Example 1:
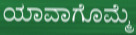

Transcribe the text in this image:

ಯಾವಾಗೊಮ್ಮೆ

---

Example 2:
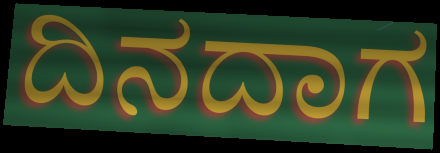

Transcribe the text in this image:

ದಿನದಾಗ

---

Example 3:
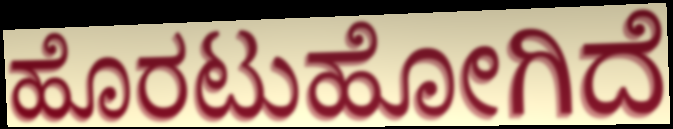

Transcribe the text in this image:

ಹೊರಟುಹೋಗಿದೆ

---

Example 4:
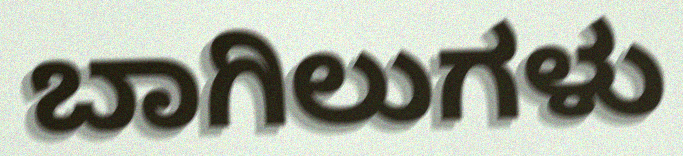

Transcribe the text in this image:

ಬಾಗಿಲುಗಳು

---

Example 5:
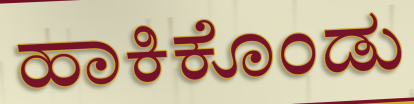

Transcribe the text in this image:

ಹಾಕಿಕೊಂಡು